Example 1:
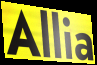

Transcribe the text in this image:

Allia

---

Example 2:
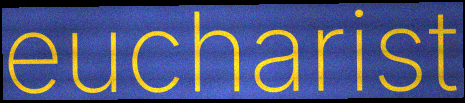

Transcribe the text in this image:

eucharist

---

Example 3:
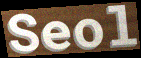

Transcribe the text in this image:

Seol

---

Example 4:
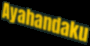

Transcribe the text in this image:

Ayahandaku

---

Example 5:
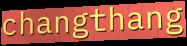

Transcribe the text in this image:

changthang